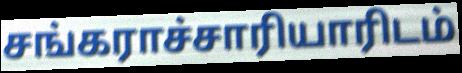
சங்கராச்சாரியாரிடம்